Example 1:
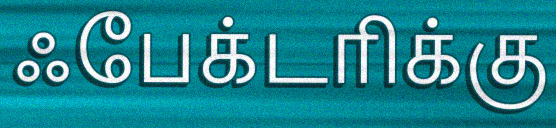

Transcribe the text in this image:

ஃபேக்டரிக்கு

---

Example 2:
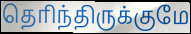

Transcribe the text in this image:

தெரிந்திருக்குமே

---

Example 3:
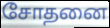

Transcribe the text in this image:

சோதனை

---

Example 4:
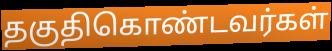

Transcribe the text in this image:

தகுதிகொண்டவர்கள்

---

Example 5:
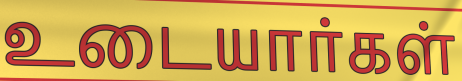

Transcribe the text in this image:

உடையார்கள்